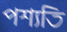
পশ্যতি